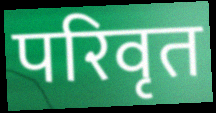
परिवृत